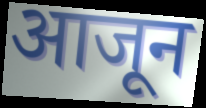
आजून